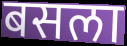
बसला